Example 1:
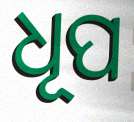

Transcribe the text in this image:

ଧୂପ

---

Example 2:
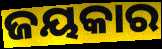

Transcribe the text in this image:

ଜୟକାର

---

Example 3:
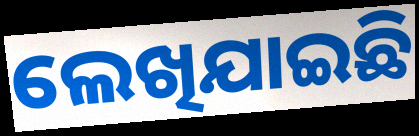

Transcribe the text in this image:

ଲେଖିଯାଇଛି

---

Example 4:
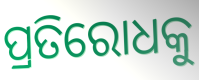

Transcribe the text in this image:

ପ୍ରତିରୋଧକୁ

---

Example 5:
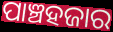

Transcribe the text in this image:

ପାଞ୍ଚହଜାର